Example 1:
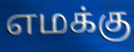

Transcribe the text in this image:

எமக்கு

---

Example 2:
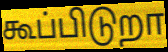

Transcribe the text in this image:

கூப்பிடுறா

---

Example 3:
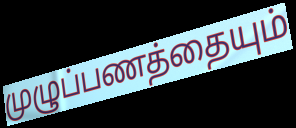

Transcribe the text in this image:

முழுப்பணத்தையும்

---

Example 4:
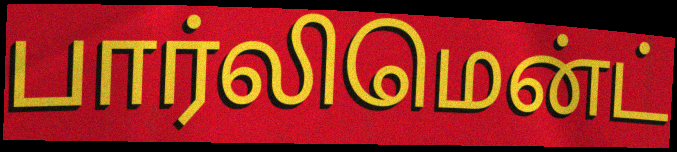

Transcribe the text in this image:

பார்லிமென்ட்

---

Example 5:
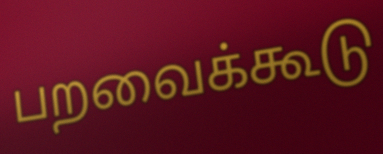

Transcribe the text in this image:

பறவைக்கூடு